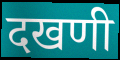
दखणी